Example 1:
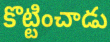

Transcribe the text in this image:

కొట్టించాడు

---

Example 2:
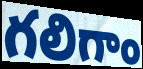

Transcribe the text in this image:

గలిగాం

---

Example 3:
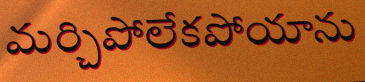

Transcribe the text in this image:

మర్చిపోలేకపోయాను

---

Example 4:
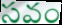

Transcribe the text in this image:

సవం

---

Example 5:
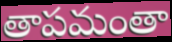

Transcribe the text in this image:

తాపమంతా